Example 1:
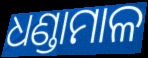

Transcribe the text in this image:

ଧଣ୍ଡାମାଳ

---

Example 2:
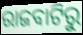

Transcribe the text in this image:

ରାଜବାଟିରୁ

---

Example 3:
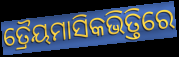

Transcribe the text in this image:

ତ୍ରୈୟମାସିକଭିତ୍ତିରେ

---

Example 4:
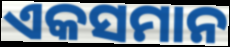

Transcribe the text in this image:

ଏକସମାନ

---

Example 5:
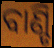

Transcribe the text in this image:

ବାଣ୍ଡି